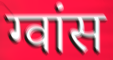
ग्वांस